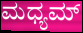
ಮಧ್ಯಮ್